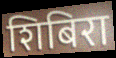
शिबिरा